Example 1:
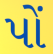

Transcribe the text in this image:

પોં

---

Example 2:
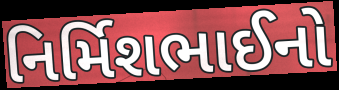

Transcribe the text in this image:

નિર્મિશભાઈનો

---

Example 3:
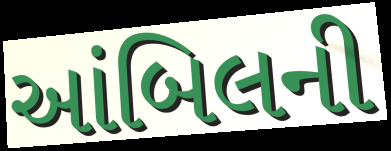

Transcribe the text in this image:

આંબિલની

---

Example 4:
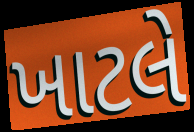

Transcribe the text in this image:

ખાટલે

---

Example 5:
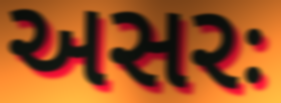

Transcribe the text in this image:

અસરઃ